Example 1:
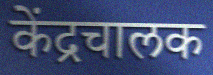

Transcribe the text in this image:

केंद्रचालक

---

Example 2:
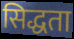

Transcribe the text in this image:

सिद्धता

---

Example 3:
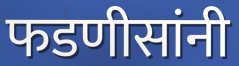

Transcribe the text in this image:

फडणीसांनी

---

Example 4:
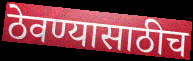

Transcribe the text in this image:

ठेवण्यासाठीच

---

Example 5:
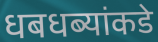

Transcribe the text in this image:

धबधब्यांकडे